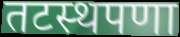
तटस्थपणा